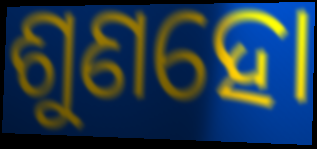
ଶୁଣହୋ